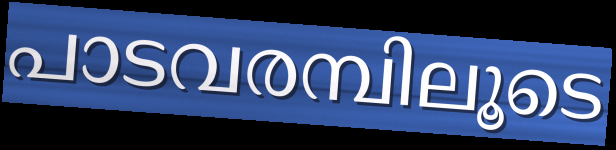
പാടവരമ്പിലൂടെ